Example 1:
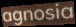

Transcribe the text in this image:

agnosia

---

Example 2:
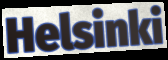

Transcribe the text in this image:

Helsinki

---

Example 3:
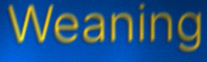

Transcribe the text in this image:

Weaning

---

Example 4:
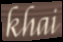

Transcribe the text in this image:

khai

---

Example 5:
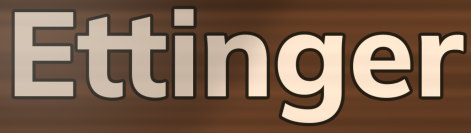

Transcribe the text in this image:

Ettinger